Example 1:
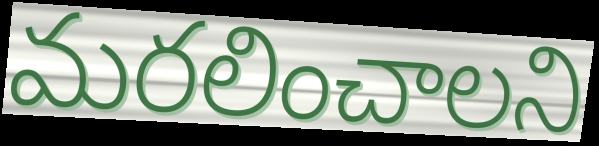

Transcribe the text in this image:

మరలించాలని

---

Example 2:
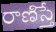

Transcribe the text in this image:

రాణిస్తే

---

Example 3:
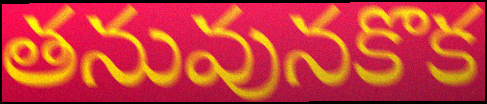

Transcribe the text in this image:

తనువునకొక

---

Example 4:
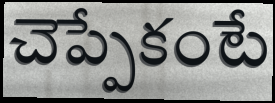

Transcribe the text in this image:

చెప్పేకంటే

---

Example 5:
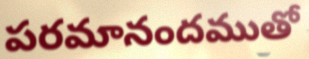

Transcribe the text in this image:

పరమానందముతో